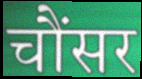
चौंसर